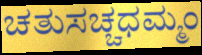
ಚತುಸಚ್ಚಧಮ್ಮಂ